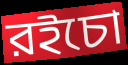
রইচো